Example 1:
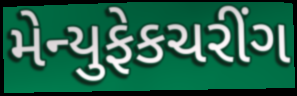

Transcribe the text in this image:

મેન્યુફેકચરીંગ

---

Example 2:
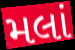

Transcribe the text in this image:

મલાં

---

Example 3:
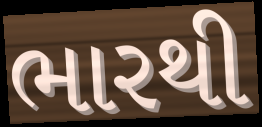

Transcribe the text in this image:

ભારથી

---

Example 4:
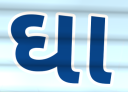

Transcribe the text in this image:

ઘા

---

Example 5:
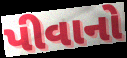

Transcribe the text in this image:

પીવાનો